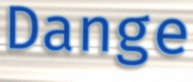
Dange